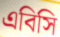
এবিসি